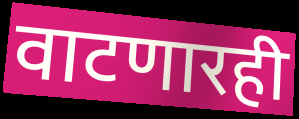
वाटणारही